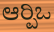
ಆರ್‍ಪಿಒ